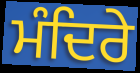
ਮੰਦਿਰੇ